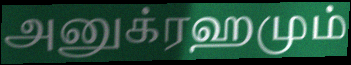
அனுக்ரஹமும்